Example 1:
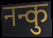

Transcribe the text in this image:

नन्कु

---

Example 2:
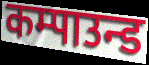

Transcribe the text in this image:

कम्पाउन्ड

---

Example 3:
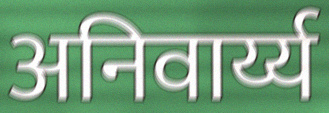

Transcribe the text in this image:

अनिवार्य्य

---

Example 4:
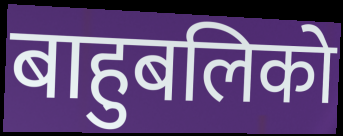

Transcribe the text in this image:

बाहुबलिको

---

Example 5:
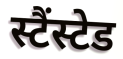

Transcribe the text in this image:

स्टैंस्टेड